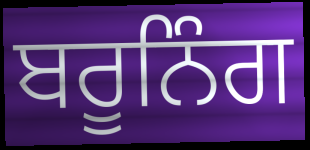
ਬਰੂਨਿੰਗ